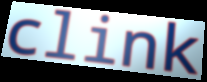
clink